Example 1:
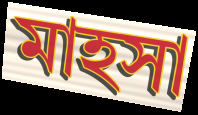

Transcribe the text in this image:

মাহসা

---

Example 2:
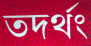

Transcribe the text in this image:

তদর্থং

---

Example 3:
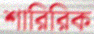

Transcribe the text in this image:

শারিরিক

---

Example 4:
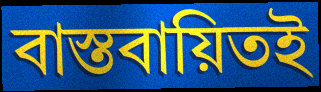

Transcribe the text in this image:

বাস্তবায়িতই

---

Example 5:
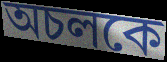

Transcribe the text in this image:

অচলকে